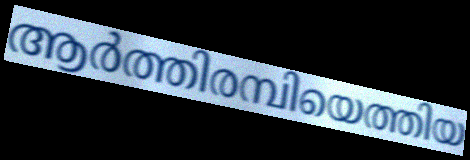
ആർത്തിരമ്പിയെത്തിയ